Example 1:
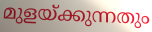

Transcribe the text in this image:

മുളയ്ക്കുന്നതും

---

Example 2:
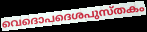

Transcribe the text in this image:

വെദൊപദെശപുസ്തകം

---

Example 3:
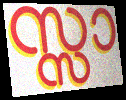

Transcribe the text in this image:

സ്സാ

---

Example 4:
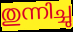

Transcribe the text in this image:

തുന്നിച്ചു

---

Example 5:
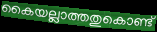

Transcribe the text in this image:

കൈയല്ലാത്തതുകൊണ്ട്